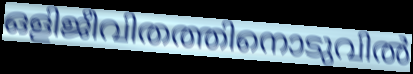
ഒളിജീവിതത്തിനൊടുവിൽ